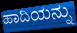
ಹಾದಿಯನ್ನು